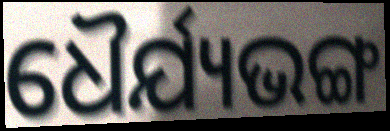
ଧୈର୍ଯ୍ୟଭଙ୍ଗ